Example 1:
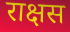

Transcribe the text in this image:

राक्षस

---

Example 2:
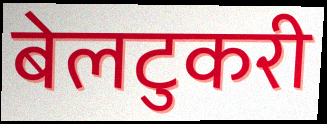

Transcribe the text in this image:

बेलटुकरी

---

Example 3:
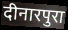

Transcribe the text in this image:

दीनारपुरा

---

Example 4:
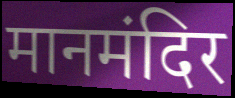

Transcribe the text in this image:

मानमंदिर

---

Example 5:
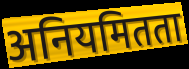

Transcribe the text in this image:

अनियमितता